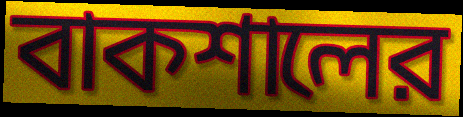
বাকশালের